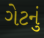
ગેટનું